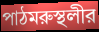
পাঠমরুস্থলীর